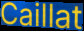
Caillat